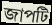
জাপটি